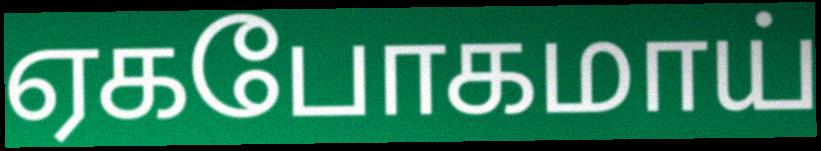
ஏகபோகமாய்